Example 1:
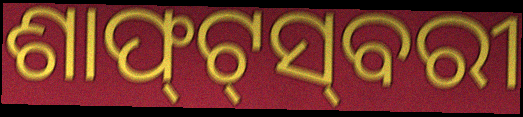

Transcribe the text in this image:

ଶାଫ୍‍ଟ୍‍ସ୍‍ବରୀ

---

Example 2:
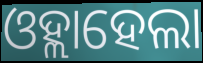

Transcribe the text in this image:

ଓହ୍ଲାହେଲା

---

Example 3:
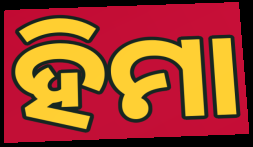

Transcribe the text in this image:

ହିମା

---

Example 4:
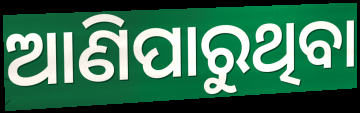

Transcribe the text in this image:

ଆଣିପାରୁଥିବା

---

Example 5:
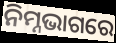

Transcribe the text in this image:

ନିମ୍ନଭାଗରେ